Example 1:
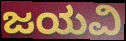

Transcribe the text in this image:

ಜಯವಿ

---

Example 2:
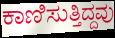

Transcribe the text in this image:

ಕಾಣಿಸುತ್ತಿದ್ದವು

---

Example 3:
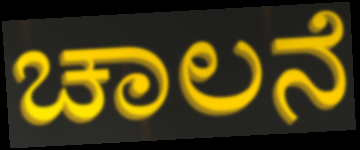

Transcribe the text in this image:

ಚಾಲನೆ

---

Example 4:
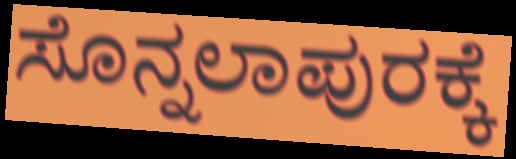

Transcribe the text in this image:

ಸೊನ್ನಲಾಪುರಕ್ಕೆ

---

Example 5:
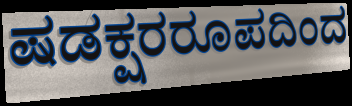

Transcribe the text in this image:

ಷಡಕ್ಷರರೂಪದಿಂದ